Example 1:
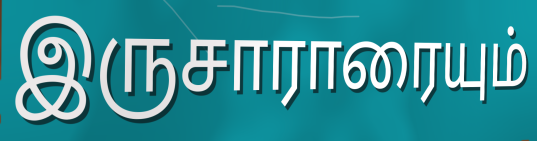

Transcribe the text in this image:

இருசாராரையும்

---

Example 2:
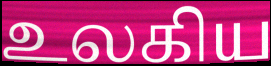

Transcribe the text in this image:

உலகிய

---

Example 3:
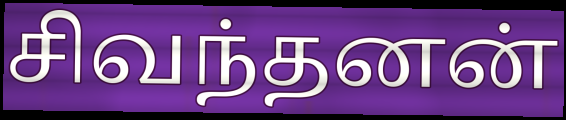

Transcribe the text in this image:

சிவந்தனன்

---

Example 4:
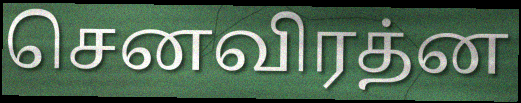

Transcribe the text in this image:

செனவிரத்ன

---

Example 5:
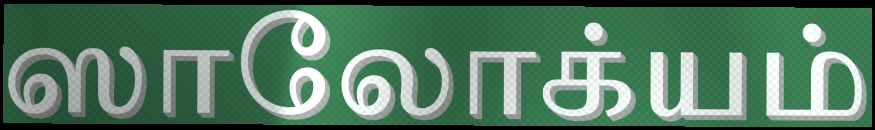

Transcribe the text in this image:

ஸாலோக்யம்